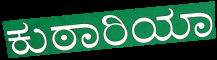
ಕುಠಾರಿಯಾ